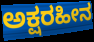
ಅಕ್ಷರಹೀನ